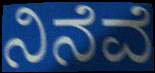
ನಿನೆವೆ